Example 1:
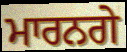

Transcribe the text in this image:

ਮਾਰਨਗੇ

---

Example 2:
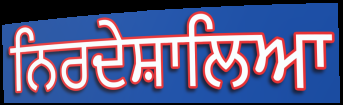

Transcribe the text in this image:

ਨਿਰਦੇਸ਼ਾਲਿਆ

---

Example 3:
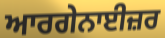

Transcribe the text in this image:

ਆਰਗੇਨਾਈਜ਼ਰ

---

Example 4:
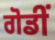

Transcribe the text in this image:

ਗੋਡੀਂ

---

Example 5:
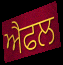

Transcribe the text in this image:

ਐਫਲ